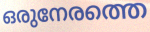
ഒരുനേരത്തെ